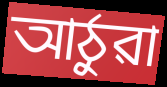
আঠুৱা